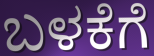
ಬಳಕೆಗೆ